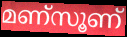
മണ്സൂണ്